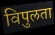
विपुलता